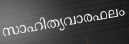
സാഹിത്യവാരഫലം